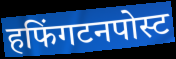
हफिंगटनपोस्ट